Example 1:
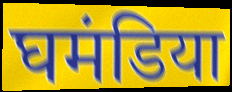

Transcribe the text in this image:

घमंडिया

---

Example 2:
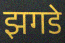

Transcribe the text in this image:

झगडे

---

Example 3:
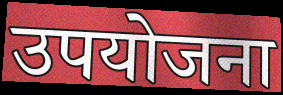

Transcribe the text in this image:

उपयोजना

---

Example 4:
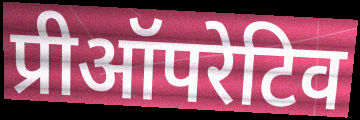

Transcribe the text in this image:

प्रीऑपरेटिव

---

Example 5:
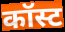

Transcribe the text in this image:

कॉस्ट